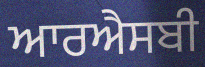
ਆਰਐਸਬੀ